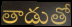
తాడుతో